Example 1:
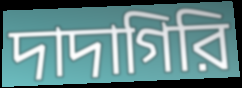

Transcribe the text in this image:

দাদাগিরি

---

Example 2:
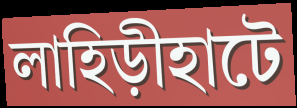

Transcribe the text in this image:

লাহিড়ীহাটে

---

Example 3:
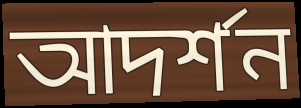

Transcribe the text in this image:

আদর্শন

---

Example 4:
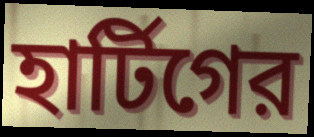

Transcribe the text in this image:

হার্টিগের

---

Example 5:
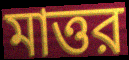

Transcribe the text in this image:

মাত্তর